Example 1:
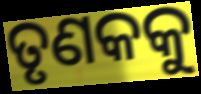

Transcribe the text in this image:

ତୃଣକକୁ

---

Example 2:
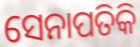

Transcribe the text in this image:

ସେନାପତିକି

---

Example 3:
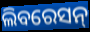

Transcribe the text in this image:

ଲିବରେସନ୍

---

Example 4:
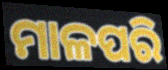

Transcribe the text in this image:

ମାଳପରି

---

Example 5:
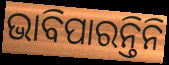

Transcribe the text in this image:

ଭାବିପାରନ୍ତିନି